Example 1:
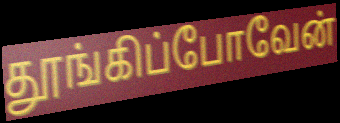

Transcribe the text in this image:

தூங்கிப்போவேன்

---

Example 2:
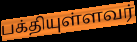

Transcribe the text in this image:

பக்தியுள்ளவர்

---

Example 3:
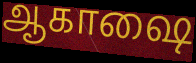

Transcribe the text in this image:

ஆகாஷை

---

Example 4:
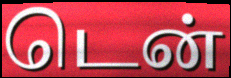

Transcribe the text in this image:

டென்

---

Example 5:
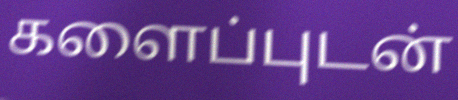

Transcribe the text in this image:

களைப்புடன்